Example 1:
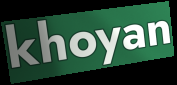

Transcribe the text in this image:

khoyan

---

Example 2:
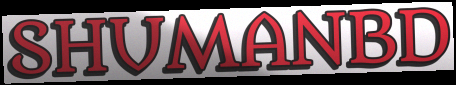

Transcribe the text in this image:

SHUMANBD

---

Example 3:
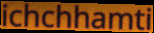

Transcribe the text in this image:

ichchhamti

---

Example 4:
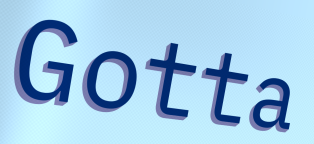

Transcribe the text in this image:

Gotta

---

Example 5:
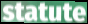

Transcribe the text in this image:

statute